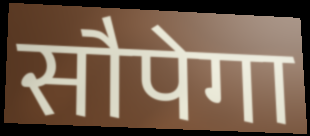
सौपेगा